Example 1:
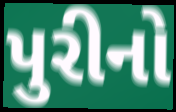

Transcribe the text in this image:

પુરીનો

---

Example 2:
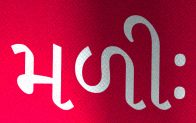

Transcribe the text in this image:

મળીઃ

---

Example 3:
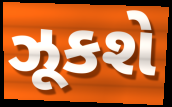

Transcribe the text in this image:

ઝૂકશે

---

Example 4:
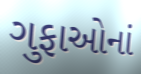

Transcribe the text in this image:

ગુફાઓનાં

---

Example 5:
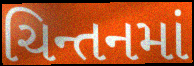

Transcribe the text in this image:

ચિન્તનમાં